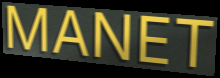
MANET